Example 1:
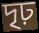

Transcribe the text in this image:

দৃঢ়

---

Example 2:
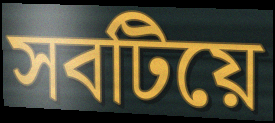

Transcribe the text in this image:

সবটিয়ে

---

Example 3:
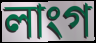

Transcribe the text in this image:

লাংগ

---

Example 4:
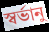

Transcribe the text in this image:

স্বর্ভানু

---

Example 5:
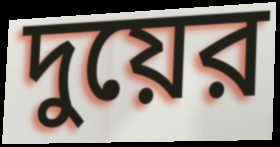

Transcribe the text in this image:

দুয়ের